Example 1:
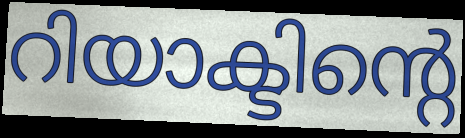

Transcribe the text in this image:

റിയാക്ടിന്റെ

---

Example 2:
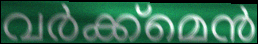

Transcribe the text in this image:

വർക്ക്മെൻ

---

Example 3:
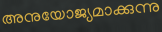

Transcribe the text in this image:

അനുയോജ്യമാക്കുന്നു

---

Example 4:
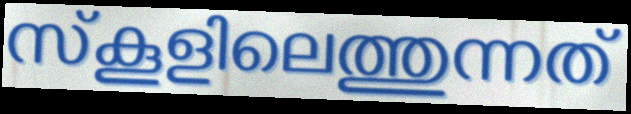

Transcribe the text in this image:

സ്‌കൂളിലെത്തുന്നത്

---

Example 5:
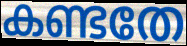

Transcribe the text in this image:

കണ്ടതേ